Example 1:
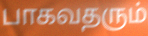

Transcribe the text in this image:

பாகவதரும்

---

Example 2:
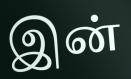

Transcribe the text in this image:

இன்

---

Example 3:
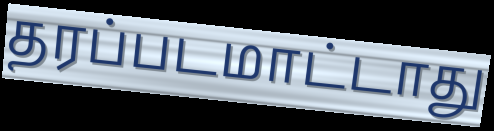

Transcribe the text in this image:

தரப்படமாட்டாது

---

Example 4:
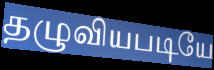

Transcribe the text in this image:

தழுவியபடியே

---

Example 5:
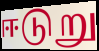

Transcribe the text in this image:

ஈடுறு